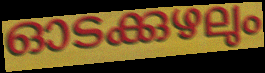
ഓടക്കുഴലും